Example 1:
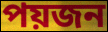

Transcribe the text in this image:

পয়জন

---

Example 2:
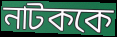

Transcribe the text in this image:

নাটককে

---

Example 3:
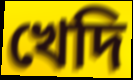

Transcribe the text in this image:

খেদি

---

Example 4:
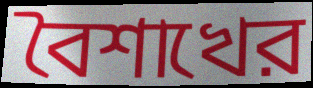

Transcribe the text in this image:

বৈশাখের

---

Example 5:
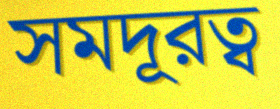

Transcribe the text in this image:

সমদূরত্ব